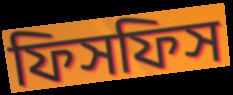
ফিসফিস